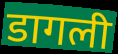
डागली